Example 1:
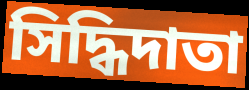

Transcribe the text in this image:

সিদ্ধিদাতা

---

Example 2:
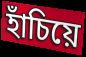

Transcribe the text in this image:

হাঁচিয়ে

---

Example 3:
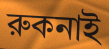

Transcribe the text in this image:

রুকনাই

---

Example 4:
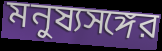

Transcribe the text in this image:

মনুষ্যসঙ্গের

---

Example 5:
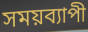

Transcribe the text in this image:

সময়ব্যাপী